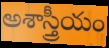
అశాస్త్రీయం